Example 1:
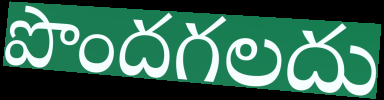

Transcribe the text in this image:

పొందగలదు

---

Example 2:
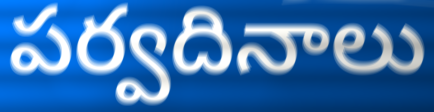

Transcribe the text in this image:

పర్వదినాలు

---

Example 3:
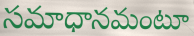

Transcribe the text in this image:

సమాధానమంటూ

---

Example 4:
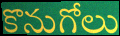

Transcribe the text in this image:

కొనుగోలు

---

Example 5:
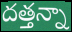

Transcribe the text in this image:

దత్తన్నా